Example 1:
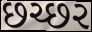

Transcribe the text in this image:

છચ્છર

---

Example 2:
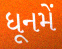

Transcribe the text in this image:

ધૂનમેં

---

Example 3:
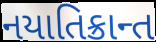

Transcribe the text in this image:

નયાતિક્રાન્ત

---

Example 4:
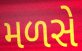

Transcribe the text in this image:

મળસે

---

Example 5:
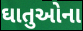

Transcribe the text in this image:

ઘાતુઓના